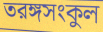
তরঙ্গসংকুল